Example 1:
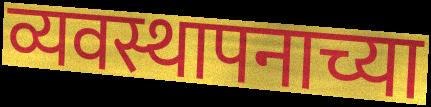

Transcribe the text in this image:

व्यवस्थापनाच्या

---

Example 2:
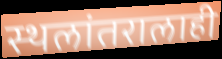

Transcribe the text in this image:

स्थलांतरालाही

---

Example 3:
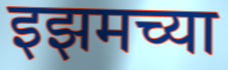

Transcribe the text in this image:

इझमच्या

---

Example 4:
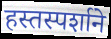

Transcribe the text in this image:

हस्तस्पर्शाने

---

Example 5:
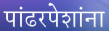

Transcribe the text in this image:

पांढरपेशांना